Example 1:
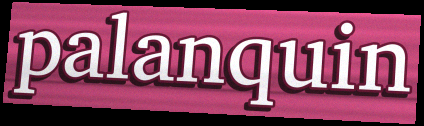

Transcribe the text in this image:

palanquin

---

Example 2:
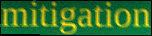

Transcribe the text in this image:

mitigation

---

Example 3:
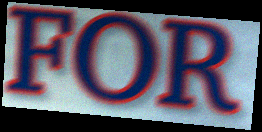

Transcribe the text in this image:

FOR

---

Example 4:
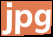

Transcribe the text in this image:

jpg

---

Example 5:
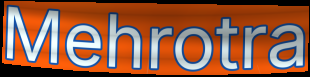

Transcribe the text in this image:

Mehrotra